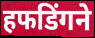
हफडिंगने